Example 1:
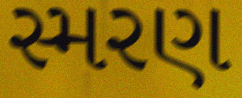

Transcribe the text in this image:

સ્મરણ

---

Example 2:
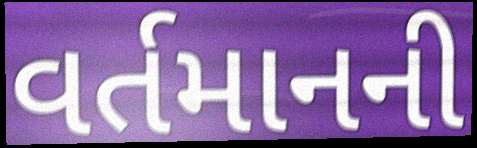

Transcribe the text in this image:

વર્તમાનની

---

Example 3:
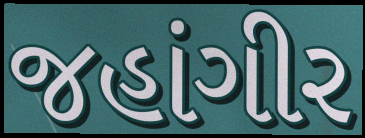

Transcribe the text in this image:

જહાંગીર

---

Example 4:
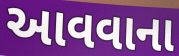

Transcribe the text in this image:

આવવાના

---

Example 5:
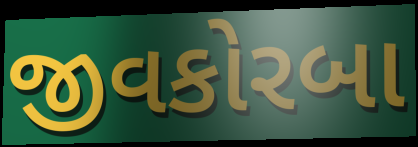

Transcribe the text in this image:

જીવકોરબા